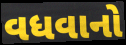
વધવાનો